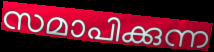
സമാപിക്കുന്ന